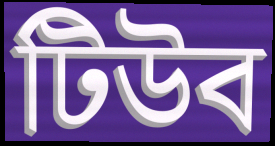
টিউব